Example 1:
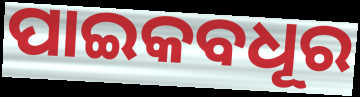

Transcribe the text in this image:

ପାଇକବଧୂର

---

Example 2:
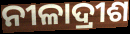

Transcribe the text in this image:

ନୀଳାଦ୍ରୀଶ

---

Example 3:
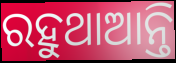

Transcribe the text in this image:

ରହୁଥାଆନ୍ତି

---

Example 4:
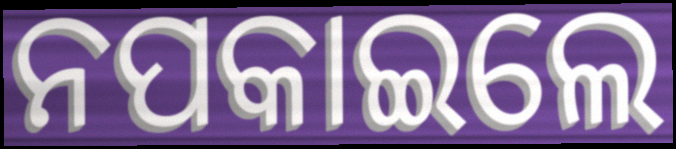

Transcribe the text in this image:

ନପକାଇଲେ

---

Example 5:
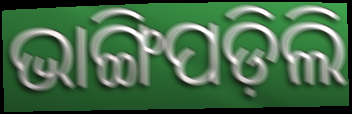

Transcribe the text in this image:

ଭାଙ୍ଗିପଡ଼ିଲି